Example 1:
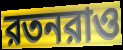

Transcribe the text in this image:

রতনরাও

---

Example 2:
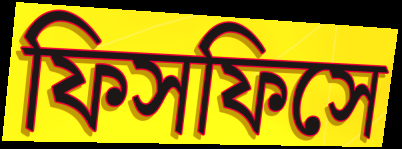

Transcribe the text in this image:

ফিসফিসে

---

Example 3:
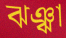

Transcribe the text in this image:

ঝঞ্ঝা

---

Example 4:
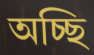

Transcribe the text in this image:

অচ্ছি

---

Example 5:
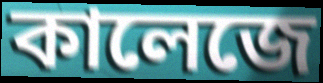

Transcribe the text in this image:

কালেজে